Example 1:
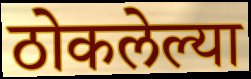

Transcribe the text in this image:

ठोकलेल्या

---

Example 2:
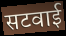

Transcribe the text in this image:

सटवाई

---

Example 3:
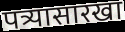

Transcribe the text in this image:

पत्र्यासारखा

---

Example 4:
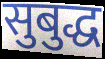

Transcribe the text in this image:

सुबुद्ध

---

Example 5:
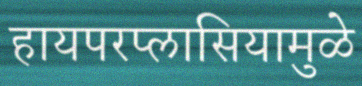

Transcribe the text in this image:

हायपरप्लासियामुळे